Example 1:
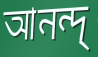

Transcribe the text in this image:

আনন্দ্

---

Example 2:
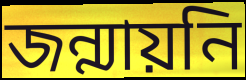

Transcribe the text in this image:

জন্মায়নি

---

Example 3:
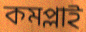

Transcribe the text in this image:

কমপ্লাই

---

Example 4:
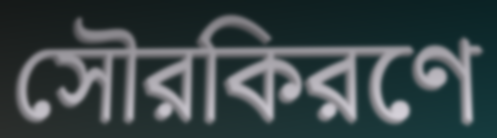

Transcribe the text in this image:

সৌরকিরণে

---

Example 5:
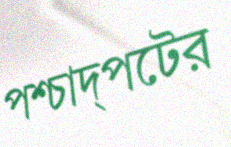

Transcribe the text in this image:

পশ্চাদ্পটের